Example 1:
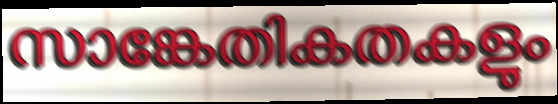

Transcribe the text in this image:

സാങ്കേതികതകളും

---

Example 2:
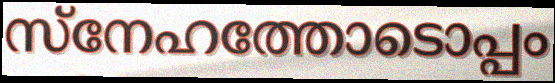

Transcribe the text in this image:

സ്നേഹത്തോടൊപ്പം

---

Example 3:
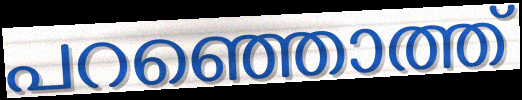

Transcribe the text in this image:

പറഞ്ഞൊത്ത്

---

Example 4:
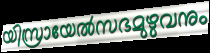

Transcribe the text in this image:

യിസ്രായേൽസഭമുഴുവനും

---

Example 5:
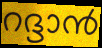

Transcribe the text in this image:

റദ്ദാൻ